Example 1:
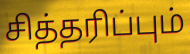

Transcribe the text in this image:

சித்தரிப்பும்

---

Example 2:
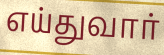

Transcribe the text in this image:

எய்துவார்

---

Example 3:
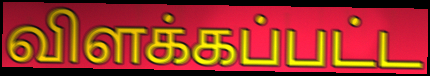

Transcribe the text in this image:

விளக்கப்பட்ட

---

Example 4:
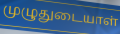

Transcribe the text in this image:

முழுதுடையாள்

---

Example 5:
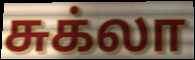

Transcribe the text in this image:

சுக்லா